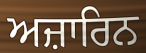
ਅਜ਼ਾਰਿਨ